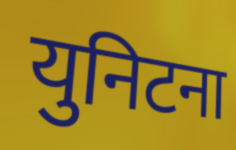
युनिटना